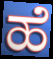
ಹೆ